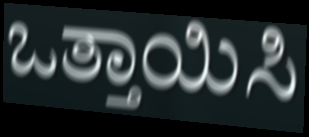
ಒತ್ತಾಯಿಸಿ